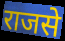
राजसे